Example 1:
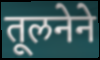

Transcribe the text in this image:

तूलनेने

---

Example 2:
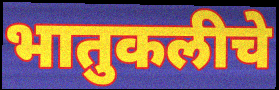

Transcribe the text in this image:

भातुकलीचे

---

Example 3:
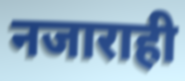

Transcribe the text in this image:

नजाराही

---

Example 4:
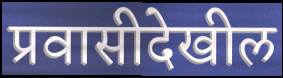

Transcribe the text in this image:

प्रवासीदेखील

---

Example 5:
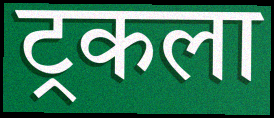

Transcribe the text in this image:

ट्रकला